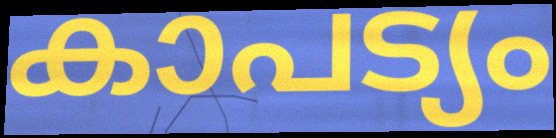
കാപട്യം